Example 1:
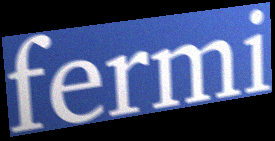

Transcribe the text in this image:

fermi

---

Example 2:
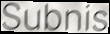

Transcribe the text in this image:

Subnis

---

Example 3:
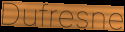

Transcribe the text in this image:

Dufresne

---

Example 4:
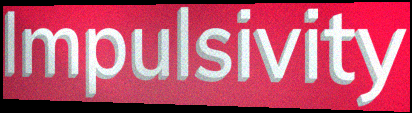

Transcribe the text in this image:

Impulsivity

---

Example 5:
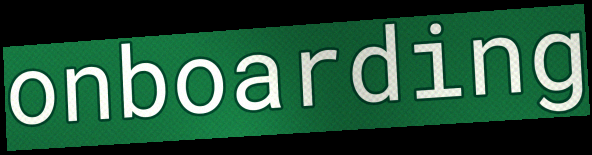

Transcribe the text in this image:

onboarding